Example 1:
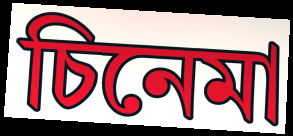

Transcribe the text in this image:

চিনেমা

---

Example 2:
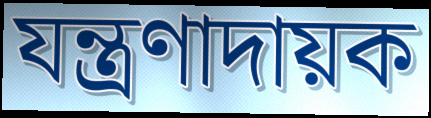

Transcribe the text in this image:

যন্ত্ৰণাদায়ক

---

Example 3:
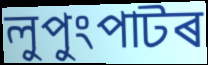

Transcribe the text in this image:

লুপুংপাটৰ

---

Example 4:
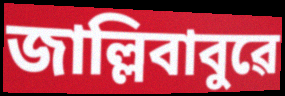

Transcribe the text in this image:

জাল্লিবাবুৱে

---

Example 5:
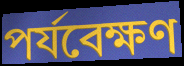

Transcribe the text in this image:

পৰ্যবেক্ষণ